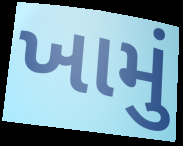
ખામું